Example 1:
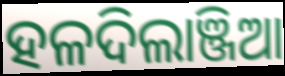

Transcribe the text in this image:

ହଳଦିଲାଞ୍ଜିଆ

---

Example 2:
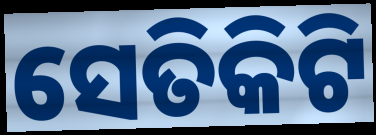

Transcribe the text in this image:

ସେତିକିଟି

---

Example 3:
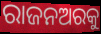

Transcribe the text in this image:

ରାଜନଅରକୁ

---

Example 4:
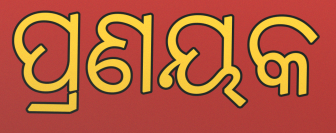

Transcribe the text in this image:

ପ୍ରଣୟକ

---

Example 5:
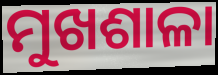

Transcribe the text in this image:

ମୁଖଶାଳା